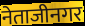
नेताजीनगर